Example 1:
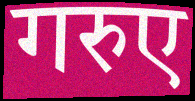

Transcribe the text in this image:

गरुए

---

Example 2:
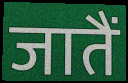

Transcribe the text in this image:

जातैं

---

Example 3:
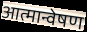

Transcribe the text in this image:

आत्मान्वेषण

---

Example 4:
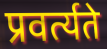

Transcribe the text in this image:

प्रवर्त्यते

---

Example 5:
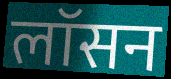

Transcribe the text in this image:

लॉसन